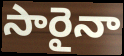
సారైనా